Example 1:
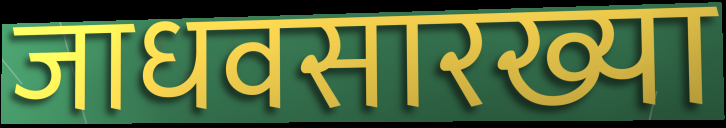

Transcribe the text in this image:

जाधवसारख्या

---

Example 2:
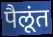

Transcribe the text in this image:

पैलूंत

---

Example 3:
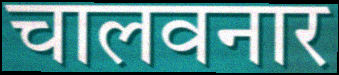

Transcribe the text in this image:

चालवनार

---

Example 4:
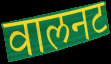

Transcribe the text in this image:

वालनट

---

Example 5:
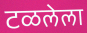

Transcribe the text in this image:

टळलेला